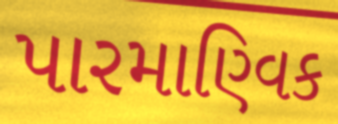
પારમાણ્વિક